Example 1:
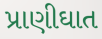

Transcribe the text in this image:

પ્રાણીઘાત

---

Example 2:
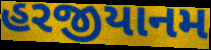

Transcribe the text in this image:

હરજીયાનમ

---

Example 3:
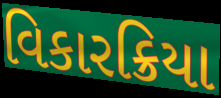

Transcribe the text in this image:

વિકારક્રિયા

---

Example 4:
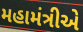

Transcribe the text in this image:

મહામંત્રીએ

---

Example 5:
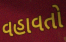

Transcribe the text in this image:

વહાવતો